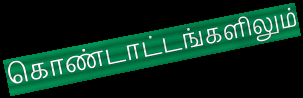
கொண்டாட்டங்களிலும்